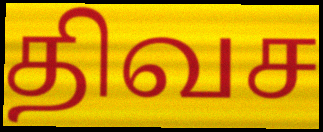
திவச